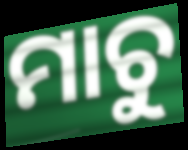
ମାଚୁ